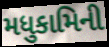
મધુકામિની